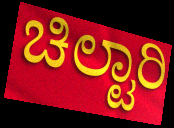
ಚಿಲ್ಟಾರಿ